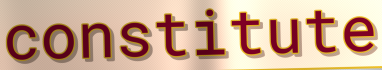
constitute